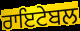
ਰਾਇਟੇਬਲ